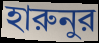
হারুনুর